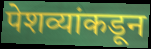
पेशव्यांकडून